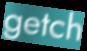
getch